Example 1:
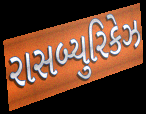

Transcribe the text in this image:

રાસબ્યુરિકેઝ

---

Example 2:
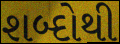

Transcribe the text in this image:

શબ્દોથી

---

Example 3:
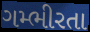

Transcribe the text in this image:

ગમ્ભીરતા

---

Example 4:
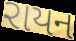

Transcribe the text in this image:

રાયન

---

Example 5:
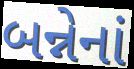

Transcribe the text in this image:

બન્નેનાં